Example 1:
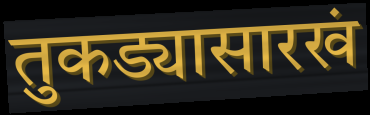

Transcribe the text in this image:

तुकड्यासारखं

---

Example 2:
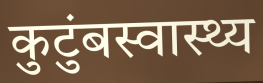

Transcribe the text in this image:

कुटुंबस्वास्थ्य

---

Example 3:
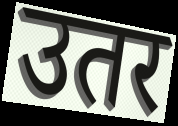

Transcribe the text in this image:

उतर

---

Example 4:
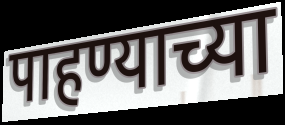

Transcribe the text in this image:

पाहण्याच्या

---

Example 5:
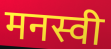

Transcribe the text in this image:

मनस्वी